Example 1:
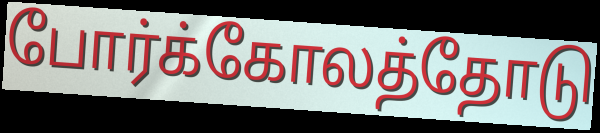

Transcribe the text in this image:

போர்க்கோலத்தோடு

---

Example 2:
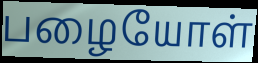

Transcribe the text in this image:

பழையோள்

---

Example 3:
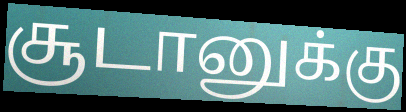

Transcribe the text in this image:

சூடானுக்கு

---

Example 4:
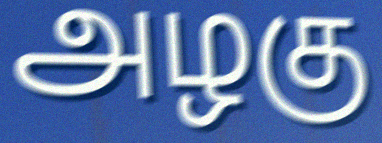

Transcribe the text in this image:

அழகு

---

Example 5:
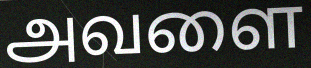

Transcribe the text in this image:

அவளை